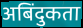
अबिंदुकता